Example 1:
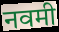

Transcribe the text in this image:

नवमी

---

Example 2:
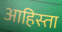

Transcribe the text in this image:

आहिस्‍ता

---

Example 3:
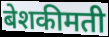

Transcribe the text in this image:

बेशकीमती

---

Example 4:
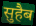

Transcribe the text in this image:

सुहैब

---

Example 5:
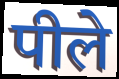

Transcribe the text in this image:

पीले